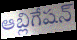
ఆబ్లిగేషన్